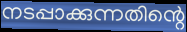
നടപ്പാക്കുന്നതിന്റെ